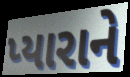
પ્યારાને